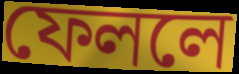
ফেললে